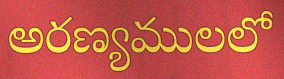
అరణ్యములలో